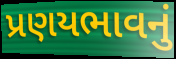
પ્રણયભાવનું